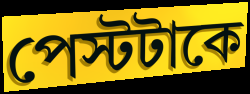
পেস্টটাকে